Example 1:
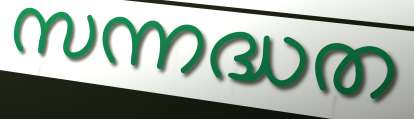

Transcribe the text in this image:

സന്നദ്ധത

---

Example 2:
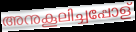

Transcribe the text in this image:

അനുകൂലിച്ചപ്പോള്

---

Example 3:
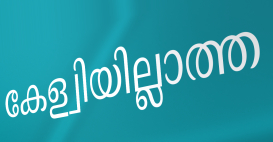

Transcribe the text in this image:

കേള്വിയില്ലാത്ത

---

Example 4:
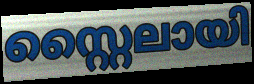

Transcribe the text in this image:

സ്റ്റൈലായി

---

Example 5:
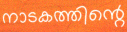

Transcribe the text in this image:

നാടകത്തിന്റെ